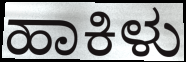
ಹಾಕಿಳು